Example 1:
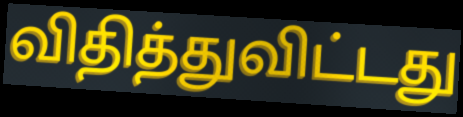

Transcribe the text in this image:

விதித்துவிட்டது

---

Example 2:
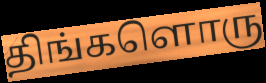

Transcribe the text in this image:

திங்களொரு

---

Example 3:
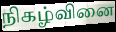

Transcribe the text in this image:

நிகழ்வினை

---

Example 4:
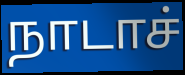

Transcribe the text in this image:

நாடாச்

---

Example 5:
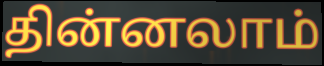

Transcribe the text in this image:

தின்னலாம்